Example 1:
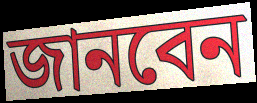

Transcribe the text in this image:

জানবেন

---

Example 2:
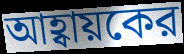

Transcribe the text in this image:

আহ্বায়কের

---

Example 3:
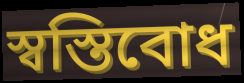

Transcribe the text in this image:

স্বস্তিবোধ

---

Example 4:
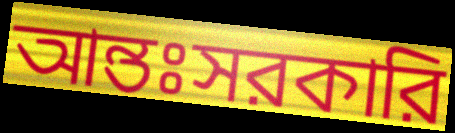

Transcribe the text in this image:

আন্তঃসরকারি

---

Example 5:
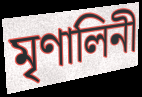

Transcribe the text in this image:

মৃণালিনী